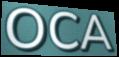
OCA